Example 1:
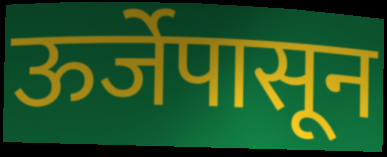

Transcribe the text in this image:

ऊर्जेपासून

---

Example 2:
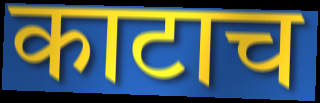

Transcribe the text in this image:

काटाच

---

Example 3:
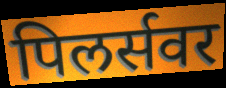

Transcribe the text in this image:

पिलर्सवर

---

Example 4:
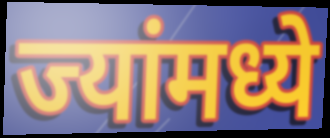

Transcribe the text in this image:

ज्यांमध्ये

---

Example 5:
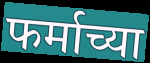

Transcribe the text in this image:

फर्माच्या